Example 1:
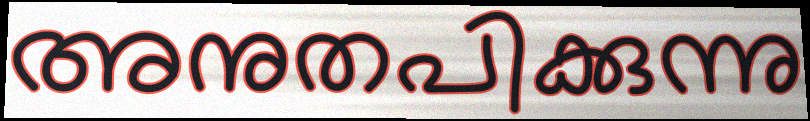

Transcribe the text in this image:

അനുതപിക്കുന്നു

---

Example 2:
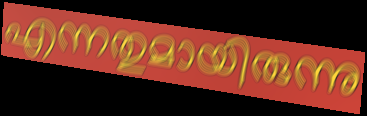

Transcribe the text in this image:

എന്നതുമായിരുന്നു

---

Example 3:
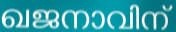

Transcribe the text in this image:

ഖജനാവിന്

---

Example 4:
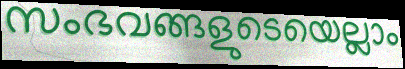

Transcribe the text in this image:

സംഭവങ്ങളുടെയെല്ലാം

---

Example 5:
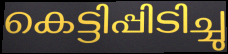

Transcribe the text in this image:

കെട്ടിപ്പിടിച്ചു